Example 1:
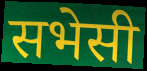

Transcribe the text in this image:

सभेसी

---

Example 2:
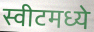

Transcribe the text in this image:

स्वीटमध्ये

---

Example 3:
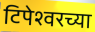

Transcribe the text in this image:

टिपेश्वरच्या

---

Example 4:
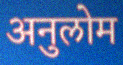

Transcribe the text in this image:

अनुलोम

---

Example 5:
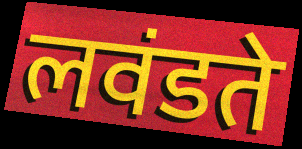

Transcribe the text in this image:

लवंडते